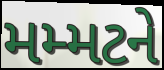
મમ્મટને